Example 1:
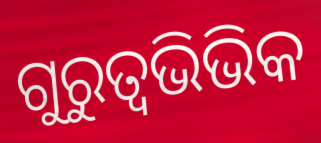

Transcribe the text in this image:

ଗୁରୁତ୍ଵଭିଭିକ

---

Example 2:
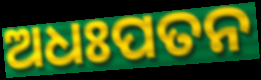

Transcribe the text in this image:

ଅଧଃପତନ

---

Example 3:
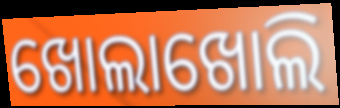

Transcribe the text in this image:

ଖୋଲାଖୋଲି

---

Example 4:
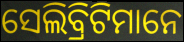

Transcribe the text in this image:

ସେଲିବ୍ରିଟିମାନେ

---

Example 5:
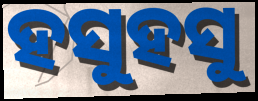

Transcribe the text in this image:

ହସୁହସୁ